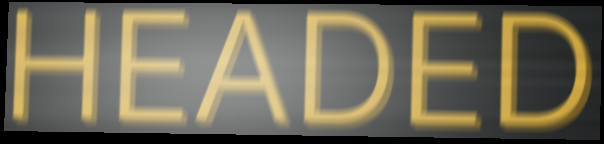
HEADED